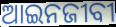
ଆଇନଜୀବୀ